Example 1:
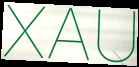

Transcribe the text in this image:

XAU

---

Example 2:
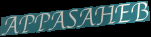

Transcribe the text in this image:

APPASAHEB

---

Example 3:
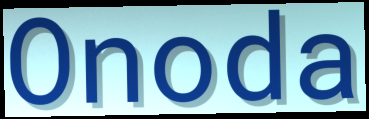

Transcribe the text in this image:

Onoda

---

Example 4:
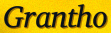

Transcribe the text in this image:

Grantho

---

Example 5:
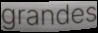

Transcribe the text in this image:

grandes